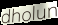
dholun